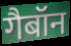
गैबॉन